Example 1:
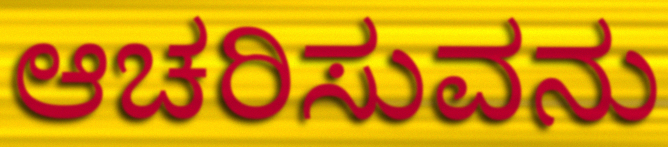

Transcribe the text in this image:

ಆಚರಿಸುವನು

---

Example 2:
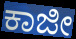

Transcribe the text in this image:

ಕಾಜೀ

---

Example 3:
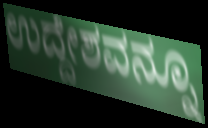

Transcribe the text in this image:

ಉದ್ದೇಶವನ್ನೂ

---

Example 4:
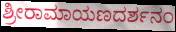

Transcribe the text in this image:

ಶ್ರೀರಾಮಾಯಣದರ್ಶನಂ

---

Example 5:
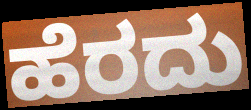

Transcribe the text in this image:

ಹೆರದು